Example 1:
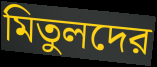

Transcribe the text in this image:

মিতুলদের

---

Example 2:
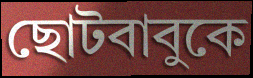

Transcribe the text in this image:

ছোটবাবুকে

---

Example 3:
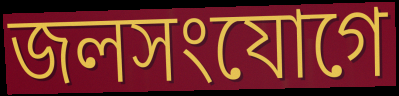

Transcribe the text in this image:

জলসংযোগে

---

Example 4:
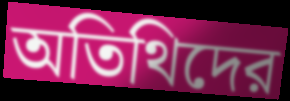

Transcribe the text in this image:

অতিথিদের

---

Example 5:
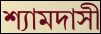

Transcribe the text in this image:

শ্যামদাসী